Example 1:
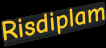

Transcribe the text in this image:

Risdiplam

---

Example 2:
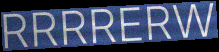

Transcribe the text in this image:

RRRRERW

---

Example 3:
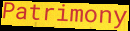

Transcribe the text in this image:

Patrimony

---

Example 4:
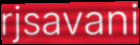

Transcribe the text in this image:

rjsavani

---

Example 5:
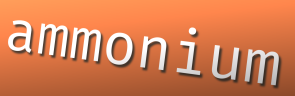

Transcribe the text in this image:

ammonium